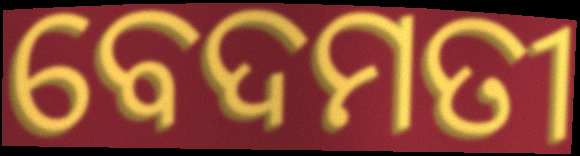
ବେଦମତୀ